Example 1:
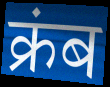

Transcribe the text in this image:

क्रंब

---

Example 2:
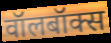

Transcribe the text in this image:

वॉलबॉक्स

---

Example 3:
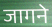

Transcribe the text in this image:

जागने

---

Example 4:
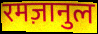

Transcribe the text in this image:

रमज़ानुल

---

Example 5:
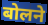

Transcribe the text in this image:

बोलने